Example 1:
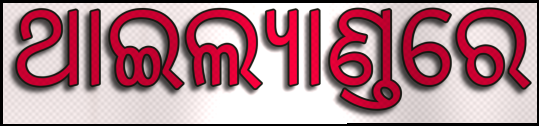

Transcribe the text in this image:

ଥାଇଲ୍ୟାଣ୍ଡରେ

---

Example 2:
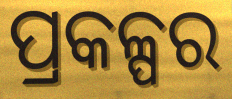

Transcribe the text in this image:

ପ୍ରକଳ୍ପର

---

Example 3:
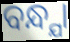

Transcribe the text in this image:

ବନ୍ଧ୍ଯା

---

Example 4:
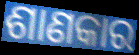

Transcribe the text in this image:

ଶାଣକାର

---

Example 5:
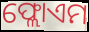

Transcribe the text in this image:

ଫ୍ଲୋଏମ